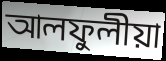
আলফুলীয়া